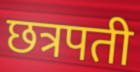
छत्रपती